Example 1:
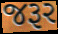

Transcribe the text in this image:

જરૂર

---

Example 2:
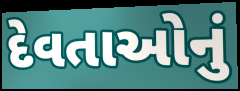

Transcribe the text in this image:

દેવતાઓનું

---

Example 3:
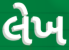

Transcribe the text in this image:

લેખ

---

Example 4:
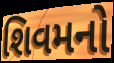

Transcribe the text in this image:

શિવમનો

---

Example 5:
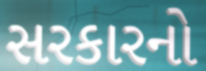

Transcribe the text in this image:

સરકારનો